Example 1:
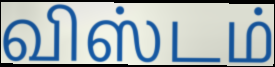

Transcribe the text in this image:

விஸ்டம்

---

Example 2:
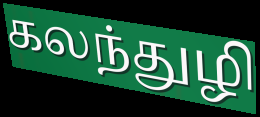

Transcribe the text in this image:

கலந்துழி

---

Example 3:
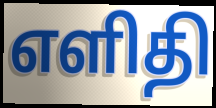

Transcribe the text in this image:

எளிதி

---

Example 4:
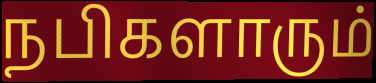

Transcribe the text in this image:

நபிகளாரும்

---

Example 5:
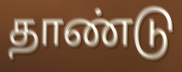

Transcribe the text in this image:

தாண்டு